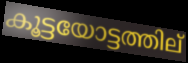
കൂട്ടയോട്ടത്തില്